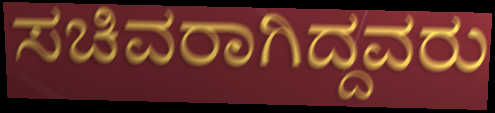
ಸಚಿವರಾಗಿದ್ದವರು